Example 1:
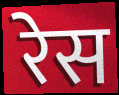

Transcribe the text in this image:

रेस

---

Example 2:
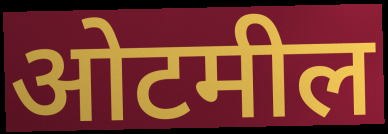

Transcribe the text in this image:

ओटमील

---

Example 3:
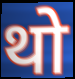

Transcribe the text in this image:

थो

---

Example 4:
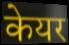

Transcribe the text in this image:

केयर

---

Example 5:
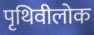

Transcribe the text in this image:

पृथिवीलोक